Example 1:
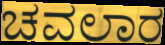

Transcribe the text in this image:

ಚವಲಾರ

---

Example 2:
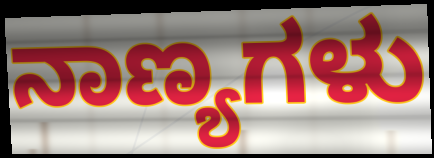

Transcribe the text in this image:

ನಾಣ್ಯಗಳು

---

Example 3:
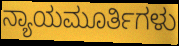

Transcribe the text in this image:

ನ್ಯಾಯಮೂರ್ತಿಗಳು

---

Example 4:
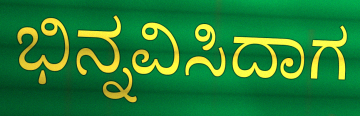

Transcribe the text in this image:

ಭಿನ್ನವಿಸಿದಾಗ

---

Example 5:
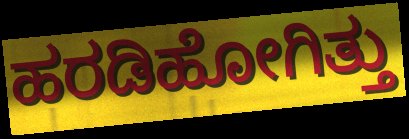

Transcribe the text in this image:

ಹರಡಿಹೋಗಿತ್ತು